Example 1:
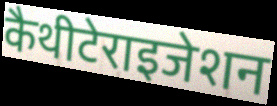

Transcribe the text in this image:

कैथीटेराइजेशन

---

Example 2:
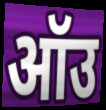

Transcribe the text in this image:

ऑउ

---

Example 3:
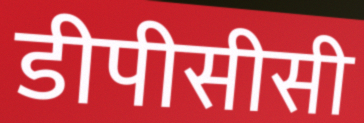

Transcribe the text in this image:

डीपीसीसी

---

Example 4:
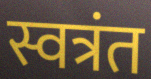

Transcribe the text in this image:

स्वत्रंत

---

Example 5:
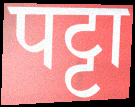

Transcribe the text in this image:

पट्टा